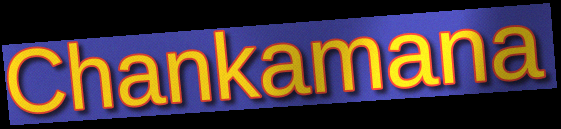
Chankamana